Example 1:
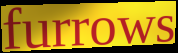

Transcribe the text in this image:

furrows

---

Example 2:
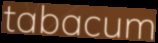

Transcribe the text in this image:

tabacum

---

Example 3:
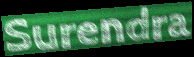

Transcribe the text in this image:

Surendra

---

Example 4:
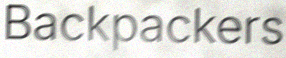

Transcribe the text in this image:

Backpackers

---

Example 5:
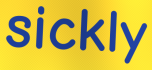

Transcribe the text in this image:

sickly